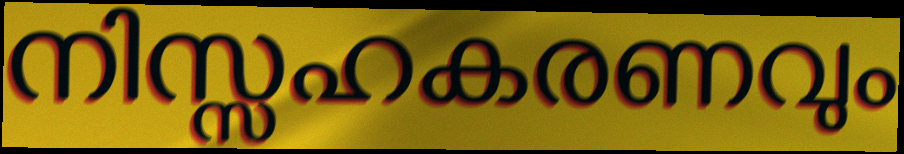
നിസ്സഹകരണവും